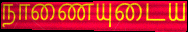
நாணையுடைய